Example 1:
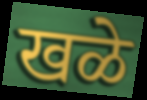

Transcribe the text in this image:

खळे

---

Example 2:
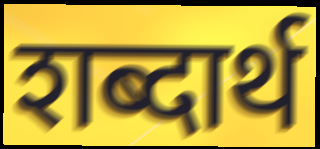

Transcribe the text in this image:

शब्दार्थ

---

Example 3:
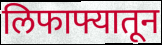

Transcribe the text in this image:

लिफाफ्यातून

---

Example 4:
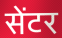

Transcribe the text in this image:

सेंटर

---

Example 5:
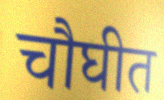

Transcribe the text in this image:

चौघीत